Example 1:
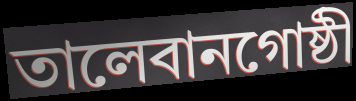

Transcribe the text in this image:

তালেবানগোষ্ঠী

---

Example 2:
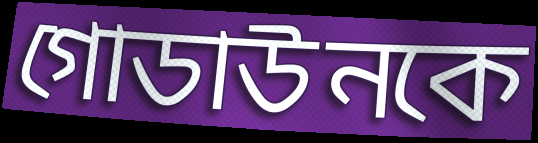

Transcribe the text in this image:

গোডাউনকে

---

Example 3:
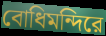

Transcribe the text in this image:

বোধিমন্দিরে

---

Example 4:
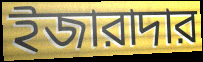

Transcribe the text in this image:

ইজারাদার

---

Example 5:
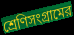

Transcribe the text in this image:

শ্রেণিসংগ্রামের